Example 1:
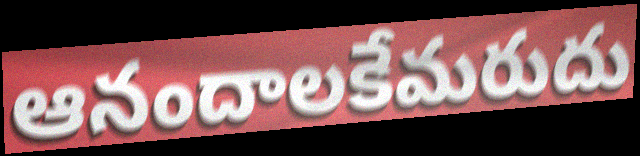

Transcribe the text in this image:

ఆనందాలకేమరుదు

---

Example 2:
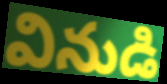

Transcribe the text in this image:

వినుడి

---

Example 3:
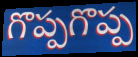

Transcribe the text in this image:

గొప్పగొప్ప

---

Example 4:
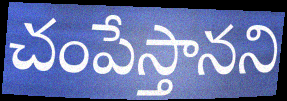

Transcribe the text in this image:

చంపేస్తానని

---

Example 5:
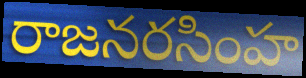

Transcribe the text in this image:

రాజనరసింహ